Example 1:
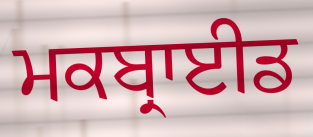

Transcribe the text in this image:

ਮਕਬ੍ਰਾਈਡ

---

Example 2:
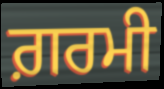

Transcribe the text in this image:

ਗ਼ਰਮੀ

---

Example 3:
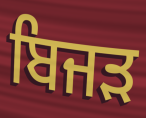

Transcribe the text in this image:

ਬਿਜੜ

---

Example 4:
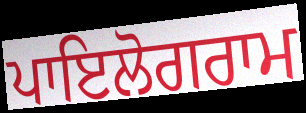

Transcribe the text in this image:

ਪਾਇਲੋਗਰਾਮ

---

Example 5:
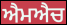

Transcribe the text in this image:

ਐਮਐਚ